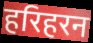
हरिहरन